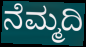
ನೆಮ್ಮದಿ